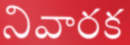
నివారక